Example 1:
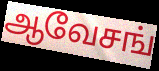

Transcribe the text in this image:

ஆவேசங்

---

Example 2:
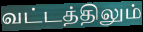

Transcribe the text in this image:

வட்டத்திலும்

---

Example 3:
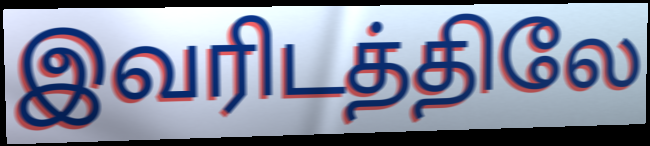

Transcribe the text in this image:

இவரிடத்திலே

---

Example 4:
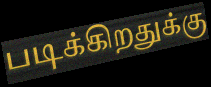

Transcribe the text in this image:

படிக்கிறதுக்கு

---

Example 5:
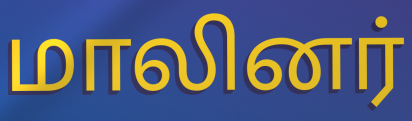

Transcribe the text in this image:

மாலினர்